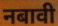
नबावी